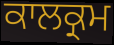
ਕਾਲਕ੍ਰਮ